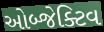
ઓબ્જેક્ટિવ